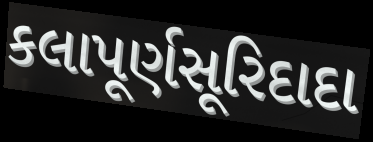
કલાપૂર્ણસૂરિદાદા